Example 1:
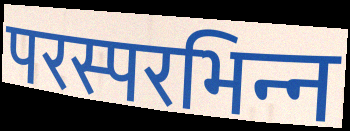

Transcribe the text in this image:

परस्परभिन्न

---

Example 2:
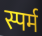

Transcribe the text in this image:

स्पर्म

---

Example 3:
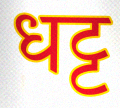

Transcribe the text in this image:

धट्ट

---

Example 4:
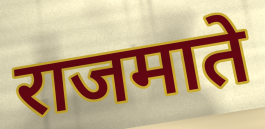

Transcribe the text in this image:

राजमाते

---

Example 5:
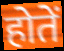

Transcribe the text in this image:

होतें